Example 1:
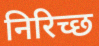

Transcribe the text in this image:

निरिच्छ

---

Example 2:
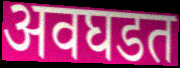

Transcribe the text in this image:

अवघडत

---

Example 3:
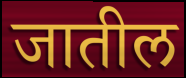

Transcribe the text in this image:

जातील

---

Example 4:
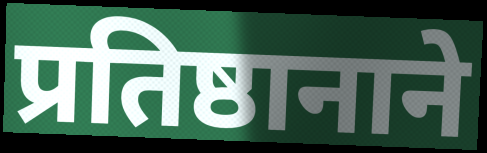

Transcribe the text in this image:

प्रतिष्ठानाने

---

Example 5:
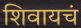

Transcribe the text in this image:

शिवायचं